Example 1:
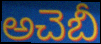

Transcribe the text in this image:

అచెబీ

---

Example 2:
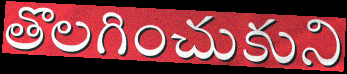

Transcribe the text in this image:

తొలగించుకుని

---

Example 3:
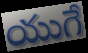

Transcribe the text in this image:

యుగే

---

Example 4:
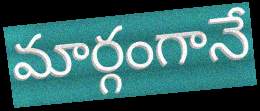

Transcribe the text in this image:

మార్గంగానే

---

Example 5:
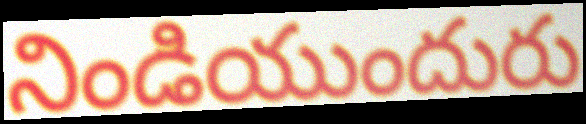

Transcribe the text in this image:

నిండియుందురు